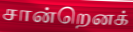
சான்றெனக்